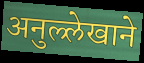
अनुल्लेखाने